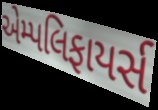
એમ્પલિફાયર્સ